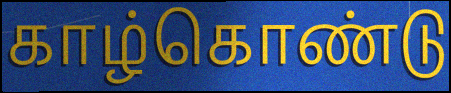
காழ்கொண்டு